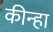
कीन्हा